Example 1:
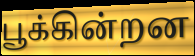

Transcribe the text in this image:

பூக்கின்றன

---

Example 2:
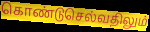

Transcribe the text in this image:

கொண்டுசெல்வதிலும்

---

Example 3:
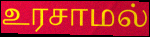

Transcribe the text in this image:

உரசாமல்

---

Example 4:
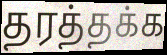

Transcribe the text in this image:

தரத்தக்க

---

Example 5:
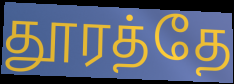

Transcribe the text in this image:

தூரத்தே